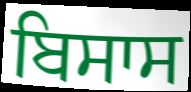
ਬਿਸਾਸ